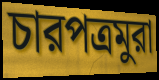
চারপত্রমুরা